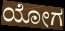
ಯೋಗ